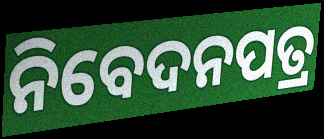
ନିବେଦନପତ୍ର